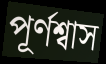
পূর্ণশ্বাস